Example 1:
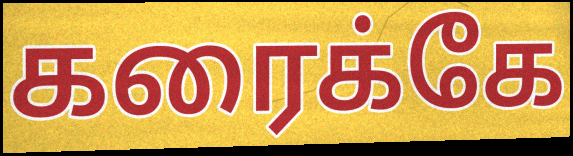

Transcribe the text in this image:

கரைக்கே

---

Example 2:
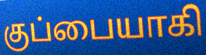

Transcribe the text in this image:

குப்பையாகி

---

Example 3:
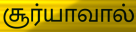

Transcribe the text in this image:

சூர்யாவால்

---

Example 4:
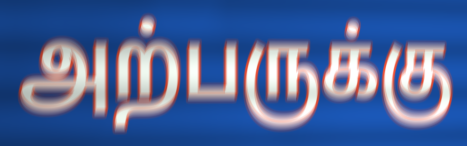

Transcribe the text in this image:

அற்பருக்கு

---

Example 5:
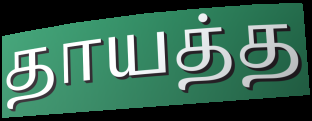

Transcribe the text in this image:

தாயத்த